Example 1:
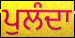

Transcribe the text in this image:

ਪੁਲੰਦਾ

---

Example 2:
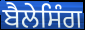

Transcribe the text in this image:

ਬੈਲੇਸਿੰਗ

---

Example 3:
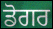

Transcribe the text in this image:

ਡੋਗਰ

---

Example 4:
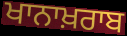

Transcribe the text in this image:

ਖਾਨਾਖ਼ਰਾਬ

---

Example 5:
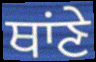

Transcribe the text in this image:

ਥਾਂਣੇ